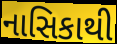
નાસિકાથી